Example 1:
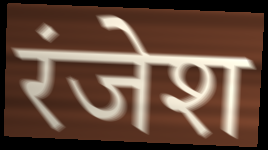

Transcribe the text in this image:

रंजेश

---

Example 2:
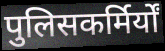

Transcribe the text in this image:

पुलिसकर्मिर्यों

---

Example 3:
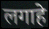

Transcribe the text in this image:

लगाहे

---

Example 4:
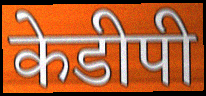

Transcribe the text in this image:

केडीपी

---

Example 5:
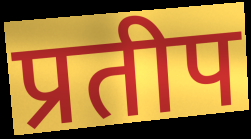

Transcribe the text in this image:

प्रतीप